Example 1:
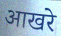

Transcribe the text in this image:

आखरे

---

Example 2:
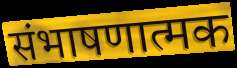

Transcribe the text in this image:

संभाषणात्मक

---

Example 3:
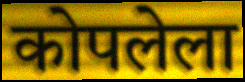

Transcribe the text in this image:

कोपलेला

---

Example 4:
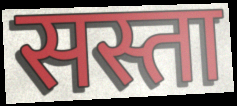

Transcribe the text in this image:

सस्ता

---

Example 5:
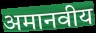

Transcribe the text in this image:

अमानवीय